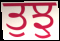
ਤੁਝੁ